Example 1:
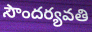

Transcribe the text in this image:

సౌందర్యవతి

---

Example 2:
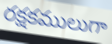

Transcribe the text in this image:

రక్షకములుగా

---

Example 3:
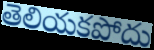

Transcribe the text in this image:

తెలియకపోదు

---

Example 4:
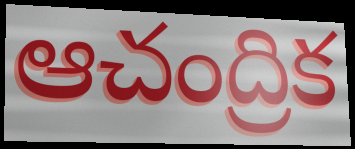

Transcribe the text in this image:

ఆచంద్రిక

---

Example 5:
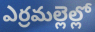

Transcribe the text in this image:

ఎర్రమల్లెల్లో